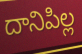
దానిపిల్ల